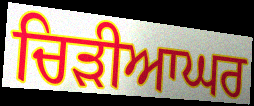
ਚਿੜੀਆਘਰ